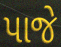
પાજે